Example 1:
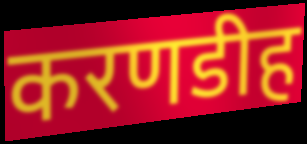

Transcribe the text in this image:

करणडीह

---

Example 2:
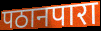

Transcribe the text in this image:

पठानपारा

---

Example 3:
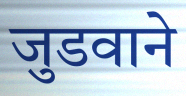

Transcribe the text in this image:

जुडवाने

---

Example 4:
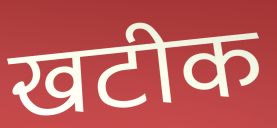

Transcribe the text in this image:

खटीक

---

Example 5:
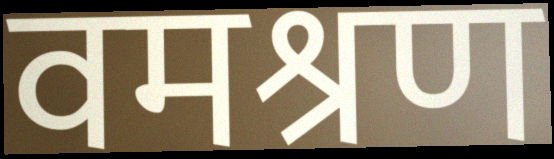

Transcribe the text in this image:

वमश्रण